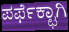
ಪರ್ಫೆಕ್ಟಾಗಿ